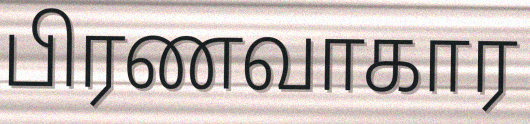
பிரணவாகார